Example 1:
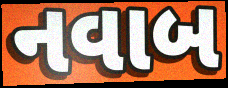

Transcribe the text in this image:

નવાબ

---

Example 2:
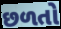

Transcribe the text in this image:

છળતો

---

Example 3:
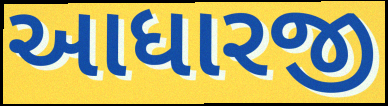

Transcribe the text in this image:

આધારજી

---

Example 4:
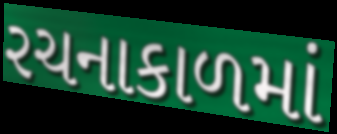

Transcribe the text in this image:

રચનાકાળમાં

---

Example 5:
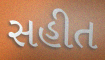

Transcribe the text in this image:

સહીત